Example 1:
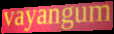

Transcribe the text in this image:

vayangum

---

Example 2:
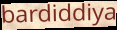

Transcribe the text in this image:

bardiddiya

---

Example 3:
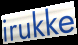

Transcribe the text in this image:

irukke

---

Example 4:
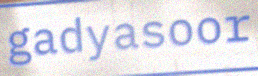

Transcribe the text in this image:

gadyasoor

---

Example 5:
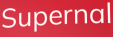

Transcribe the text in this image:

Supernal